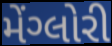
મેંગ્લોરી